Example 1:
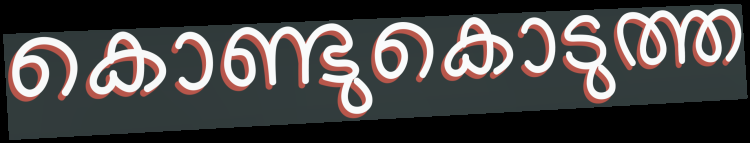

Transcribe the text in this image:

കൊണ്ടുകൊടുത്ത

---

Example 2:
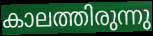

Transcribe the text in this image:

കാലത്തിരുന്നു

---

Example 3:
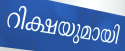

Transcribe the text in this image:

റിക്ഷയുമായി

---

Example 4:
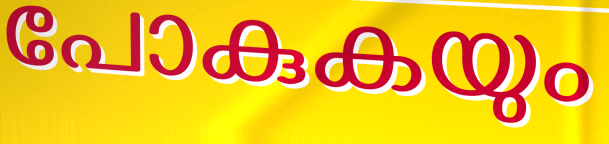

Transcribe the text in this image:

പോകുകയും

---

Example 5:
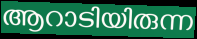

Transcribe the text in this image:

ആറാടിയിരുന്ന